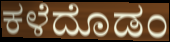
ಕಳೆದೊಡಂ